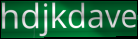
hdjkdave